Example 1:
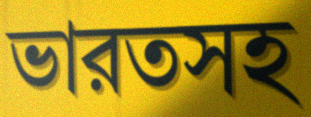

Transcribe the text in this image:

ভারতসহ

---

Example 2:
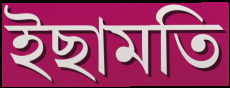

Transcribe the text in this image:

ইছামতি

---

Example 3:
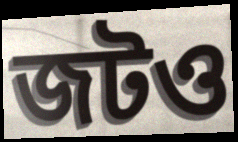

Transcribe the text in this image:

জটও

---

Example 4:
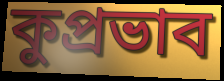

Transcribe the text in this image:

কুপ্রভাব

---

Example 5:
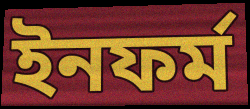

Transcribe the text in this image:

ইনফর্ম